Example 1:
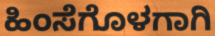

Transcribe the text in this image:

ಹಿಂಸೆಗೊಳಗಾಗಿ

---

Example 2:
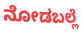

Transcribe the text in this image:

ನೋಡಬಲ್ಲೆ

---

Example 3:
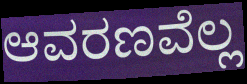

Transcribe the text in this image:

ಆವರಣವೆಲ್ಲ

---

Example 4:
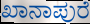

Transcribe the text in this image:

ಖಾನಾಪುರೆ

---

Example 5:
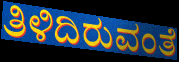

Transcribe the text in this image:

ತಿಳಿದಿರುವಂತೆ